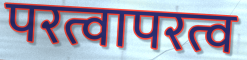
परत्वापरत्व